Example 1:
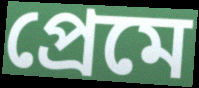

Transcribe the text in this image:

প্রেমে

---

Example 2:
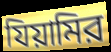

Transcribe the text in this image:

যিয়ামির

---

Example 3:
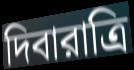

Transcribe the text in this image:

দিবারাত্রি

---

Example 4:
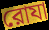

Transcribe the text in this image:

রোযা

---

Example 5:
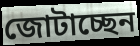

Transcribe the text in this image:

জোটাচ্ছেন